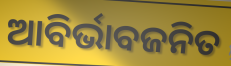
ଆବିର୍ଭାବଜନିତ